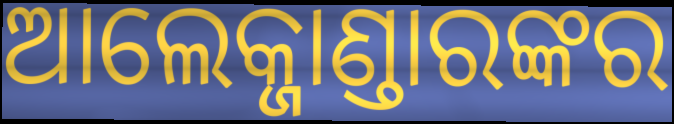
ଆଲେକ୍ଜାଣ୍ଡାରଙ୍କର